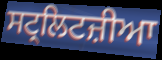
ਸਟ੍ਰਲਿਟਜ਼ੀਆ